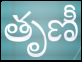
తృణీ